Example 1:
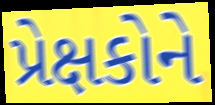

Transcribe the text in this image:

પ્રેક્ષકોને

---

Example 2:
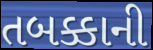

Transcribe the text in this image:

તબક્કાની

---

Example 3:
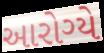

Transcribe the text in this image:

આરોગ્યે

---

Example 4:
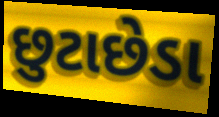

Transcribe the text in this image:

છુટાછેડા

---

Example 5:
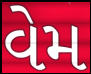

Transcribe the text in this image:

વેમ